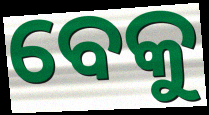
ବେକୁ